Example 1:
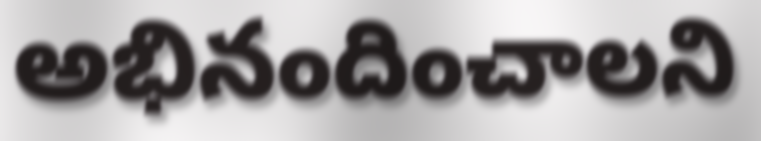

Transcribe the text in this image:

అభినందించాలని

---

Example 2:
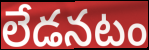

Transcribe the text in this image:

లేడనటం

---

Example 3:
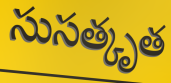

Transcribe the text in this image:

సుసత్కృత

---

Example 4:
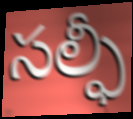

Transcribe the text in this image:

సల్ఫీ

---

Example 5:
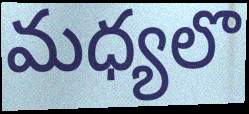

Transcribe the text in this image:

మధ్యలొ